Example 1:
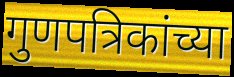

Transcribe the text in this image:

गुणपत्रिकांच्या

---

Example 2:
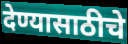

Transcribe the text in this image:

देण्यासाठीचे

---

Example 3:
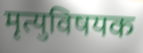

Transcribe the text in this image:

मृत्युविषयक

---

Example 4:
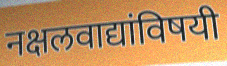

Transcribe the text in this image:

नक्षलवाद्यांविषयी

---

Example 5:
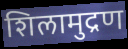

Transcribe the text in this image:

शिलामुद्रण